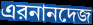
এরনানদেজ